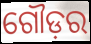
ଗୌଡ଼ର